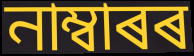
নাম্বাৰৰ